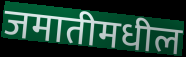
जमातीमधील